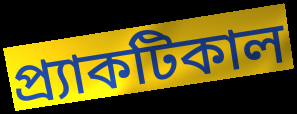
প্র্যাকটিকাল